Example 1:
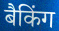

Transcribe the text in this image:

बैकिंग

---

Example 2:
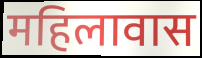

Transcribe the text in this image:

महिलावास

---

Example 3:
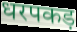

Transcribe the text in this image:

धरपकड़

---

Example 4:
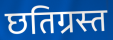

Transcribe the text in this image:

छतिग्रस्त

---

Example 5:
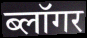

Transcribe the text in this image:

ब्लॉगर